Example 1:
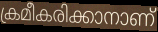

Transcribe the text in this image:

ക്രമീകരിക്കാനാണ്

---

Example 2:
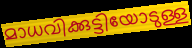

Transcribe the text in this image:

മാധവിക്കുട്ടിയോടുള്ള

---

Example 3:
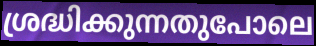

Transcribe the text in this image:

ശ്രദ്ധിക്കുന്നതുപോലെ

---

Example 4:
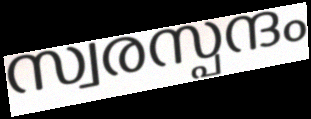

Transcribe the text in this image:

സ്വരസ്പന്ദം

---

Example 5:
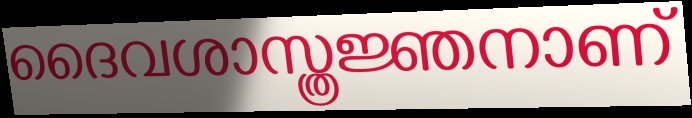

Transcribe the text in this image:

ദൈവശാസ്ത്രജ്ഞനാണ്